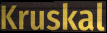
Kruskal